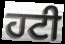
ਹਟੀ